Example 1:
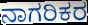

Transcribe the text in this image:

ನಾಗರಿಕರ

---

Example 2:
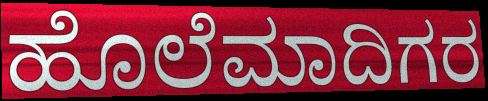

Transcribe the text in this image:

ಹೊಲೆಮಾದಿಗರ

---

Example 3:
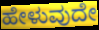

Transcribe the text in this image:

ಹೇಳುವುದೇ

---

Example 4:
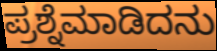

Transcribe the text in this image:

ಪ್ರಶ್ನೆಮಾಡಿದನು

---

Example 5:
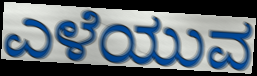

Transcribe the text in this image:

ಎಳೆಯುವ